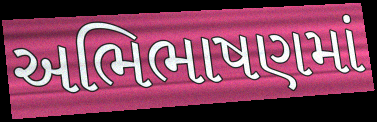
અભિભાષણમાં